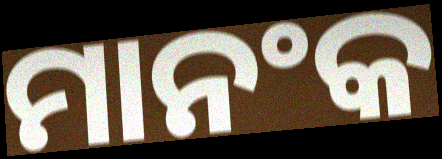
ମାନଂକ